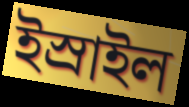
ইস্রাইল